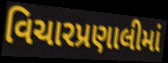
વિચારપ્રણાલીમાં